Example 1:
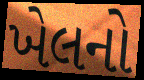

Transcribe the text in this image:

ખેલનો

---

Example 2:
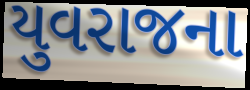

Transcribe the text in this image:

યુવરાજના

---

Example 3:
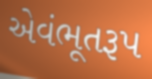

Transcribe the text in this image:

એવંભૂતરૂપ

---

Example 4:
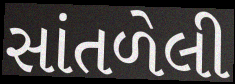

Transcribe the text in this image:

સાંતળેલી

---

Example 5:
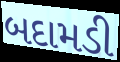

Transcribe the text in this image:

બદામડી